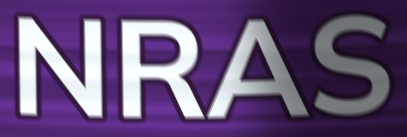
NRAS